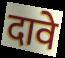
दावे